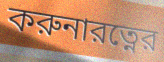
করুনারত্নের